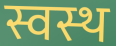
स्वस्थ